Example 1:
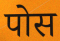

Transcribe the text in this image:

पोस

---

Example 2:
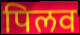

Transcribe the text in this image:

पिलव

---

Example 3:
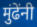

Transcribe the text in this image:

मुंढेंनी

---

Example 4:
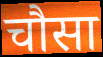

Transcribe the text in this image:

चौसा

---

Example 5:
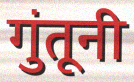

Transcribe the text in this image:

गुंतूनी